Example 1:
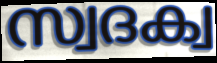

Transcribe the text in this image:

സ്വദക്വ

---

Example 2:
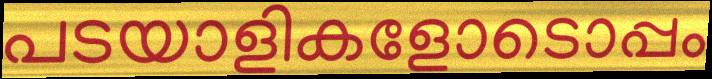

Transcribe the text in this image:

പടയാളികളോടൊപ്പം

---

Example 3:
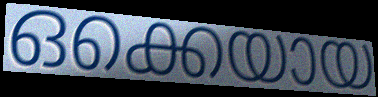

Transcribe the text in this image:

ഒക്കെയായ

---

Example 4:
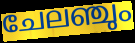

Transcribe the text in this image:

ചേലഞ്ചും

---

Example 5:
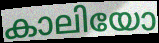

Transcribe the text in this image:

കാലിയോ